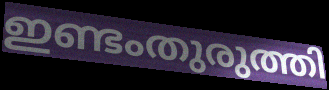
ഇണ്ടംതുരുത്തി